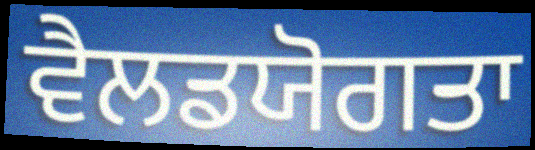
ਵੈਲਡਯੋਗਤਾ